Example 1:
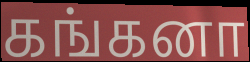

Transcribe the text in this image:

கங்கனா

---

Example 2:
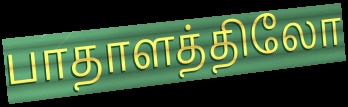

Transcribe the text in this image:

பாதாளத்திலோ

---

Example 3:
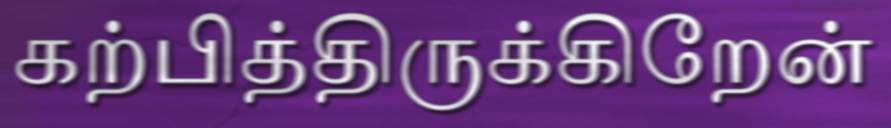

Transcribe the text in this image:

கற்பித்திருக்கிறேன்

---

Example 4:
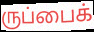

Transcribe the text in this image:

ருப்பைக்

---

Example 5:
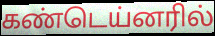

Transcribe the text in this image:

கண்டெய்னரில்